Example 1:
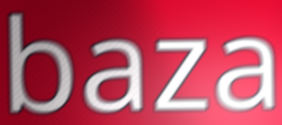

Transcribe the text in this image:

baza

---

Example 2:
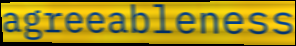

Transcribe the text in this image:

agreeableness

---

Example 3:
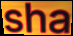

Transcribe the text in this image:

sha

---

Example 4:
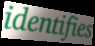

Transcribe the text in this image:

identifies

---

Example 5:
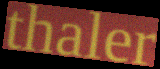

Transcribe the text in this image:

thaler